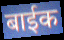
बाईक